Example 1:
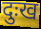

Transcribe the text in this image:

दुःख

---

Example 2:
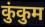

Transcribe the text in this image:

कुंकुम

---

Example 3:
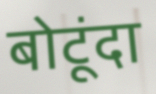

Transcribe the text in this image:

बोटूंदा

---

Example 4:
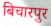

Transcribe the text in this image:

बिचारपुर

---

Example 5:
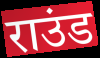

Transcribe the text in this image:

राउंड